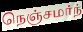
நெஞ்சமர்ந்